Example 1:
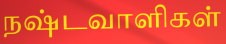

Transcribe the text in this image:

நஷ்டவாளிகள்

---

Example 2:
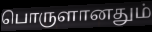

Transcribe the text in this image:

பொருளானதும்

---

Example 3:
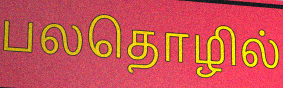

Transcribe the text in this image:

பலதொழில்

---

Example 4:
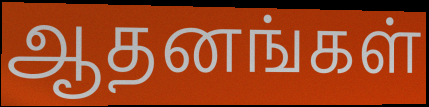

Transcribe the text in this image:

ஆதனங்கள்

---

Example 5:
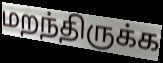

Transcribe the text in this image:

மறந்திருக்க